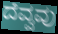
ದೆವ್ವವು